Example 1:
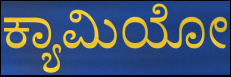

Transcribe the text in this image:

ಕ್ಯಾಮಿಯೋ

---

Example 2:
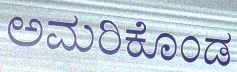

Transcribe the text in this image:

ಅಮರಿಕೊಂಡ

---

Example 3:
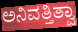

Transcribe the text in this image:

ಅನಿವತ್ತಿತ್ವಾ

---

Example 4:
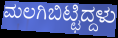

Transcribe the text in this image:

ಮಲಗಿಬಿಟ್ಟಿದ್ದಳು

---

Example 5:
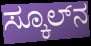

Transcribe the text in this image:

ಸ್ಕೂಲ್‌ನ